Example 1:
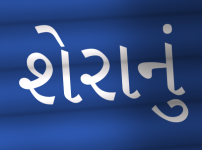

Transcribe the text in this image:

શેરાનું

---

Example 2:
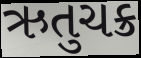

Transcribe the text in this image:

ઋતુચક્ર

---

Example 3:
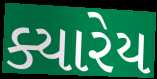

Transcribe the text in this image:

ક્યારેય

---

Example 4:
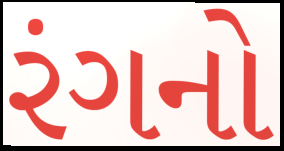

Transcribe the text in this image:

રંગનો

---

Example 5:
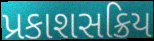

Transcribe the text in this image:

પ્રકાશસક્રિય